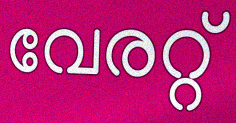
വേരറ്റ്